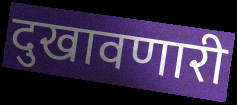
दुखावणारी